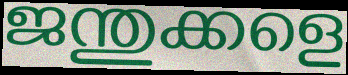
ജന്തുക്കളെ